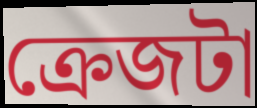
ক্রেজটা